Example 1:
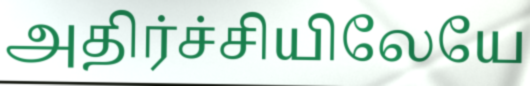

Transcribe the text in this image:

அதிர்ச்சியிலேயே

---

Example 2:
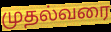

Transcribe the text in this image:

முதல்வரை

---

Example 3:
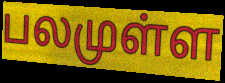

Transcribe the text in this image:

பலமுள்ள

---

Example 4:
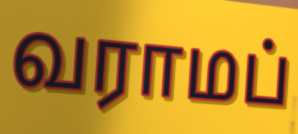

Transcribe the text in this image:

வராமப்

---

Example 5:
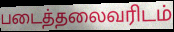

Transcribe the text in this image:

படைத்தலைவரிடம்